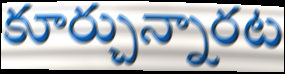
కూర్చున్నారట